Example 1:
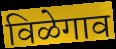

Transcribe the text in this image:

विळेगाव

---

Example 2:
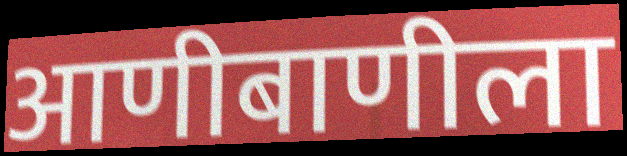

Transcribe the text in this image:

आणीबाणीला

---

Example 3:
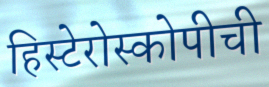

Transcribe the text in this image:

हिस्टेरोस्कोपीची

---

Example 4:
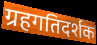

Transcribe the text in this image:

ग्रहगतिदर्शक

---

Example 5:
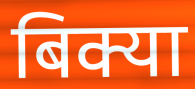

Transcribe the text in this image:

बिक्या